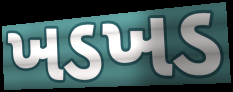
ખડખડ